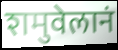
शमुवेलानं